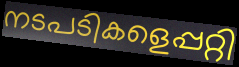
നടപടികളെപ്പറ്റി